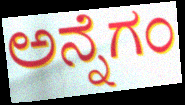
ಅನ್ನೆಗಂ